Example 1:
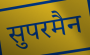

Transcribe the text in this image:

सुपरमैन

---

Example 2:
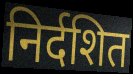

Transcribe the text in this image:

निर्दशित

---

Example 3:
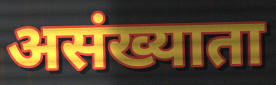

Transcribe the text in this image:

असंख्याता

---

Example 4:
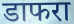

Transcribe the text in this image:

डाफरा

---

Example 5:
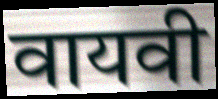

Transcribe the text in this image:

वायवी